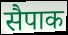
सैपाक